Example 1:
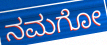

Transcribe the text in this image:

ನಮಗೋ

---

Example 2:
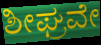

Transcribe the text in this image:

ಶೀಘ್ರವೇ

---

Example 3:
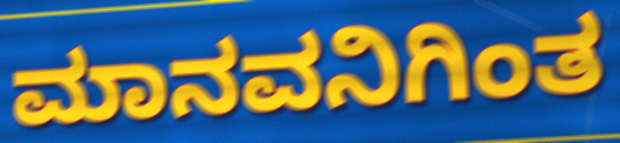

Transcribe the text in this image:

ಮಾನವನಿಗಿಂತ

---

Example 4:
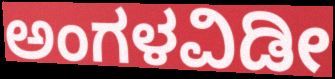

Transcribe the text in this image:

ಅಂಗಳವಿಡೀ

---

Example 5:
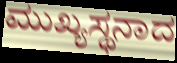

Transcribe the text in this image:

ಮುಖ್ಯಸ್ಥನಾದ